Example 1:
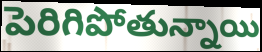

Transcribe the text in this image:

పెరిగిపోతున్నాయి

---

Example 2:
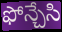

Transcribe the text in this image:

ఫోన్చేసి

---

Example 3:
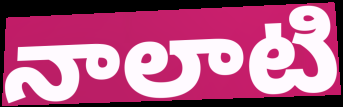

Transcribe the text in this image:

నాలాటి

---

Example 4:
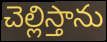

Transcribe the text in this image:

చెల్లిస్తాను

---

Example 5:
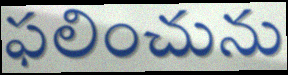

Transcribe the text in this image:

ఫలించును